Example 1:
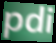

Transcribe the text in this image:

pdi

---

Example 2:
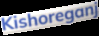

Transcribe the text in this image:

Kishoreganj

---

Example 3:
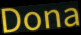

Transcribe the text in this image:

Dona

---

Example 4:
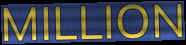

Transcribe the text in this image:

MILLION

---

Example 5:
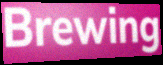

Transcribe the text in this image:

Brewing